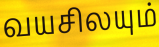
வயசிலயும்